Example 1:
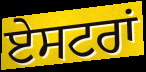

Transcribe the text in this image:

ਏਸਟਰਾਂ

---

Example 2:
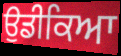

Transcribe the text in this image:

ਉਡੀਕਿਆ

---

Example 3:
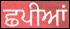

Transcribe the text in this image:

ਛਪੀਆਂ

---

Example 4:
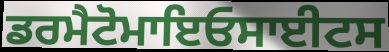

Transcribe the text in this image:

ਡਰਮੈਟੋਮਾਇਓਸਾਈਟਸ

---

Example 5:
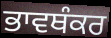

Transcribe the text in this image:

ਭਾਵਥੰਕਰ